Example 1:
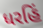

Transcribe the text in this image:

ધરહિં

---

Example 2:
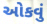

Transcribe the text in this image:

ઓકવું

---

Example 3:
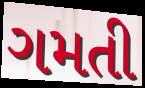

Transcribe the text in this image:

ગમતી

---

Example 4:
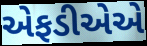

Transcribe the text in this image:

એફડીએએ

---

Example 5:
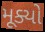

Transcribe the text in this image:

મૂક્યો